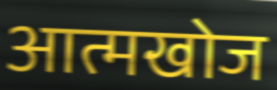
आत्मखोज